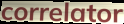
correlator